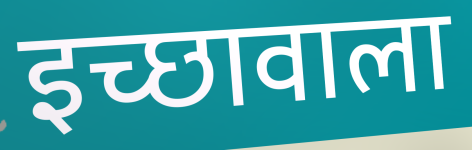
इच्छावाला